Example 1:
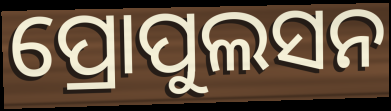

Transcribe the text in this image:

ପ୍ରୋପୁଲସନ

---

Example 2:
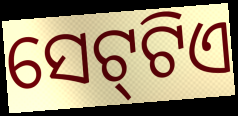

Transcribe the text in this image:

ସେଟ୍‍ଟିଏ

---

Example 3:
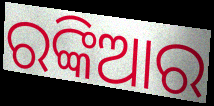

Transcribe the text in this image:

ରଙ୍କିଆର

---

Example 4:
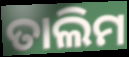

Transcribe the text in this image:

ତାଲିମ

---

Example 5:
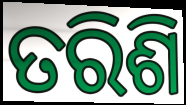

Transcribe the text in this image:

ତରିଶି